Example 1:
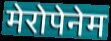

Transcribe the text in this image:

मेरोपेनेम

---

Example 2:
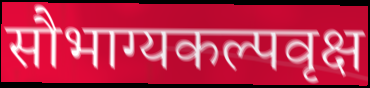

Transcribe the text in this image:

सौभाग्यकल्पवृक्ष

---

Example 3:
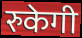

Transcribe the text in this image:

रुकेगी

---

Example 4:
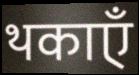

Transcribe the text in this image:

थकाएँ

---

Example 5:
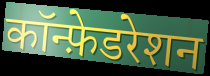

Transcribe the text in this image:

कॉन्फ़ेडरेशन